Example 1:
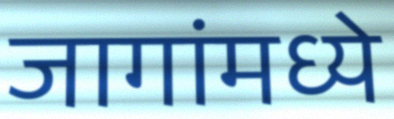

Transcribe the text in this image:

जागांमध्ये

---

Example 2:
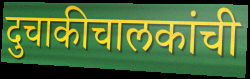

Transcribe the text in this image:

दुचाकीचालकांची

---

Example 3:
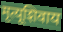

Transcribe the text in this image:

मृत्यूशिवाय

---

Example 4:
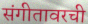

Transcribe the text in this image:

संगीतावरची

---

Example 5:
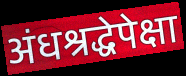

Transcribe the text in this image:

अंधश्रद्धेपेक्षा